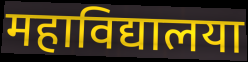
महाविद्यालया